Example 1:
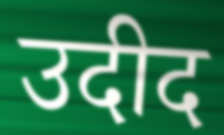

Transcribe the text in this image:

उदीद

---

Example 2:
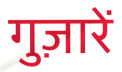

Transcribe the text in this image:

गुज़ारें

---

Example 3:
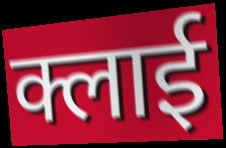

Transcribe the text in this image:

क्लाई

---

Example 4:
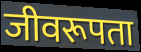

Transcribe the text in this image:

जीवरूपता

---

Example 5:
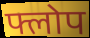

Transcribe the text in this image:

फ्लोप